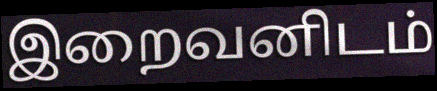
இறைவனிடம்